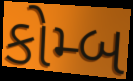
કોમ્બ